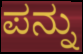
ಪನ್ನು